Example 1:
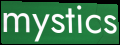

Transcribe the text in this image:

mystics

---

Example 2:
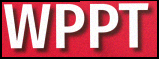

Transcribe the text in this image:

WPPT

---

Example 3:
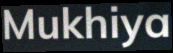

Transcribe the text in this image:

Mukhiya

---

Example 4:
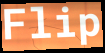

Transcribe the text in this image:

Flip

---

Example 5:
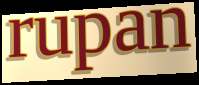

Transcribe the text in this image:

rupan